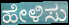
ಹೇಳಿಸು